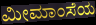
ಮೀಮಾಂಸೆಯ